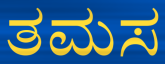
ತಮಸ